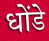
धोंडे